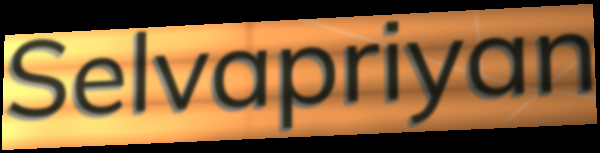
Selvapriyan